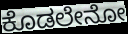
ಕೊಡಲೇನೋ